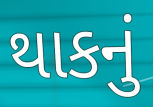
થાકનું